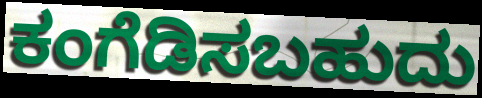
ಕಂಗೆಡಿಸಬಹುದು